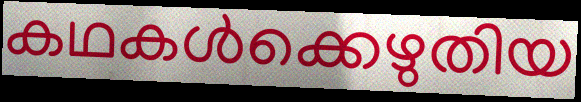
കഥകൾക്കെഴുതിയ